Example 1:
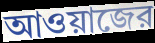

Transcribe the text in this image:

আওয়াজের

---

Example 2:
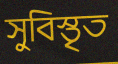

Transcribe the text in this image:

সুবিস্তৃত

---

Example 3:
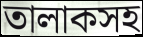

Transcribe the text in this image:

তালাকসহ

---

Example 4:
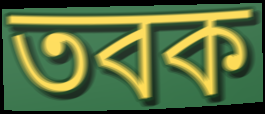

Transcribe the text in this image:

তবক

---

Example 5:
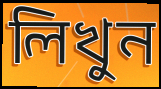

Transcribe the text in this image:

লিখুন